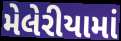
મેલેરીયામાં